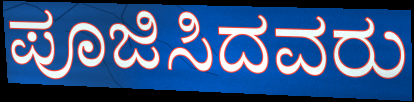
ಪೂಜಿಸಿದವರು